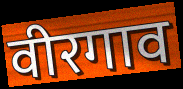
वीरगाव